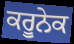
ਕਰੂਨੇਕ